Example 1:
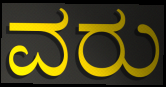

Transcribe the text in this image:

ವರು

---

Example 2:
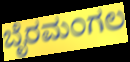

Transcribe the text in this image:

ಬೈರಮಂಗಲ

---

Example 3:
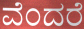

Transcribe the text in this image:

ವೆಂದರೆ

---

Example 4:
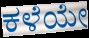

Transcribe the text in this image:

ಕಳೆಯೇ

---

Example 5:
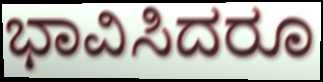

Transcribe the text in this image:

ಭಾವಿಸಿದರೂ